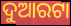
ଦୁଆରଟା